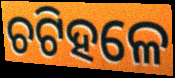
ଚଟିହଳେ